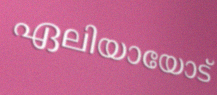
ഏലിയായോട്